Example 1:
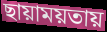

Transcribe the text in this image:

ছায়াময়তায়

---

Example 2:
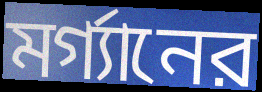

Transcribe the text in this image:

মর্গ্যানের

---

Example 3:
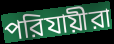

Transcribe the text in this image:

পরিযায়ীরা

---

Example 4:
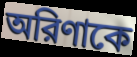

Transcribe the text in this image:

অরিণাকে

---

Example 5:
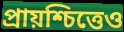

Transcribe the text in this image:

প্রায়শ্চিত্তেও